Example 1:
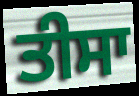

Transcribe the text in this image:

ਤੀਸਾ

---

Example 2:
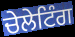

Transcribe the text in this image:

ਚੇਲੇਟਿੰਗ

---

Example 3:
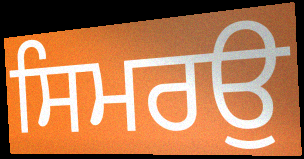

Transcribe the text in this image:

ਸਿਮਰਉ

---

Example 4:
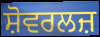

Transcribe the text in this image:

ਸ਼ੋਵਰਲਜ਼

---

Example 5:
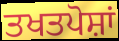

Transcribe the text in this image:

ਤਖਤਪੋਸ਼ਾਂ